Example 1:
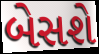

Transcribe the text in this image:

બેસશે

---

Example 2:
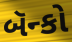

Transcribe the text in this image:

બૅન્કો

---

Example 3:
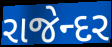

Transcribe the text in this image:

રાજેન્દર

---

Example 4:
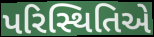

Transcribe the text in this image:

પરિસ્થિતિએ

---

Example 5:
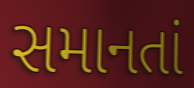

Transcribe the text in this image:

સમાનતાં